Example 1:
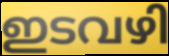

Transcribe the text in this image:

ഇടവഴി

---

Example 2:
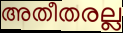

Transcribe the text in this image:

അതീതരല്ല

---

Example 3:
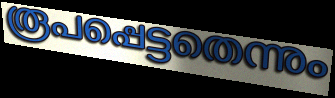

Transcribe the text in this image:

രൂപപ്പെട്ടതെന്നും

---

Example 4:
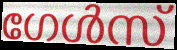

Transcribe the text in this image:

ഗേൾസ്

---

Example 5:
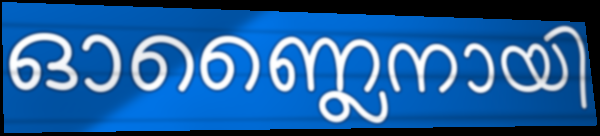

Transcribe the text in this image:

ഓണ്ലൈനായി